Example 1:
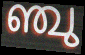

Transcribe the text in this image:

ഞ്ചു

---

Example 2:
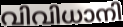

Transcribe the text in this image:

വിവിധാനി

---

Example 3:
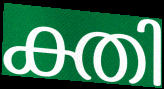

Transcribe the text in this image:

ക്തി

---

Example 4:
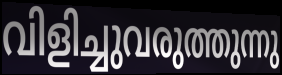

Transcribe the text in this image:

വിളിച്ചുവരുത്തുന്നു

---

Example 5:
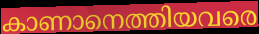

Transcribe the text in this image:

കാണാനെത്തിയവരെ